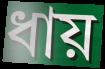
ধায়